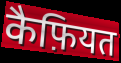
कैफ़ियत